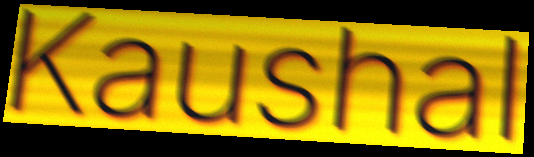
Kaushal